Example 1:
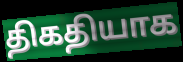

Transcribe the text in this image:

திகதியாக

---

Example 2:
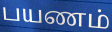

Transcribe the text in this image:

பயணம்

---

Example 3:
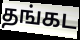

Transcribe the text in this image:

தங்கட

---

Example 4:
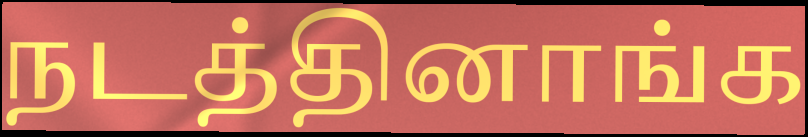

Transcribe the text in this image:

நடத்தினாங்க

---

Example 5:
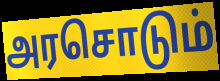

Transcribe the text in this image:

அரசொடும்